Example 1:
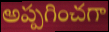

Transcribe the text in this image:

అప్పగించగా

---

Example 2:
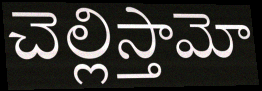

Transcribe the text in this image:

చెల్లిస్తామో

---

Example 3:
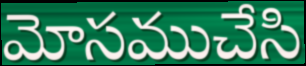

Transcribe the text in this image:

మోసముచేసి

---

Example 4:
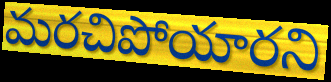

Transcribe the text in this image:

మరచిపోయారని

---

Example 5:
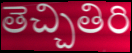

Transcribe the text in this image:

తెచ్చితిరి